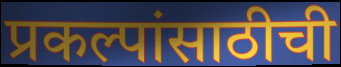
प्रकल्पांसाठीची